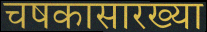
चषकासारख्या